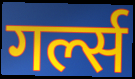
गर्ल्स